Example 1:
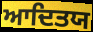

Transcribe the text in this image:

ਆਦਿਤਯ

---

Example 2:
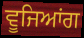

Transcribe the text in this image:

ਵੂਜਿਆਂਗ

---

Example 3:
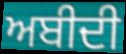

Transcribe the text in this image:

ਅਬੀਦੀ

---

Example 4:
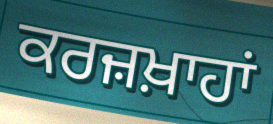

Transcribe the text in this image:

ਕਰਜ਼ਖ਼ਾਹਾਂ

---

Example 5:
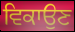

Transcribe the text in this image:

ਵਿਕਾਉਣ